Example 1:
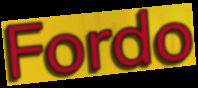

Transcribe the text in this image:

Fordo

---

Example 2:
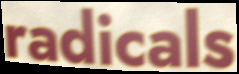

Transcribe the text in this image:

radicals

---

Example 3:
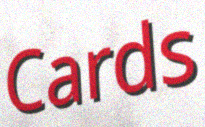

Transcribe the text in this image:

Cards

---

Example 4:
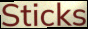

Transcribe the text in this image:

Sticks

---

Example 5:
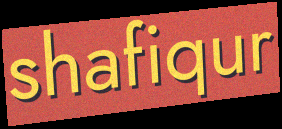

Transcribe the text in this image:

shafiqur